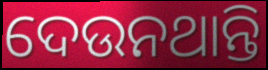
ଦେଉନଥାନ୍ତି